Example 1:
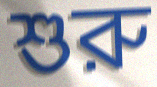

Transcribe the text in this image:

শুরু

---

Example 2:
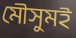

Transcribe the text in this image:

মৌসুমই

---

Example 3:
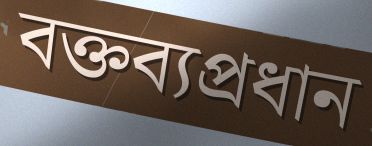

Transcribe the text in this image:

বক্তব্যপ্রধান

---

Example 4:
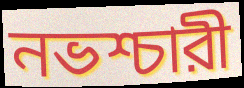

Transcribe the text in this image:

নভশ্চারী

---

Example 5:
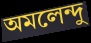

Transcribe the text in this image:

অমলেন্দু